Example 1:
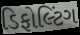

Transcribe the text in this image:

ડિફોલ્ટિંગ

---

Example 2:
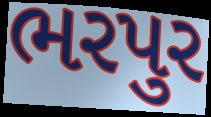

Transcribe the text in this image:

ભરપુર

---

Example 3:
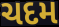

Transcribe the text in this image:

ચદમ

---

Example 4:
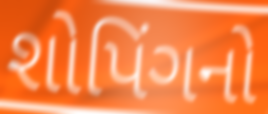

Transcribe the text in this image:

શોપિંગનો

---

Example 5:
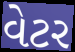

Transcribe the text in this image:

વેટર